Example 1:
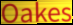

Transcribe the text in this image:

Oakes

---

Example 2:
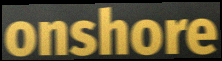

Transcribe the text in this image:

onshore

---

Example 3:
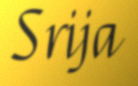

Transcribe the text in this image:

Srija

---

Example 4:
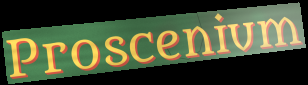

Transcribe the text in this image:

Proscenium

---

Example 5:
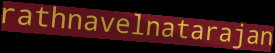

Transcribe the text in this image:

rathnavelnatarajan